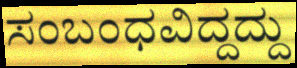
ಸಂಬಂಧವಿದ್ದದ್ದು